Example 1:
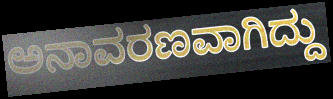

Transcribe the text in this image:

ಅನಾವರಣವಾಗಿದ್ದು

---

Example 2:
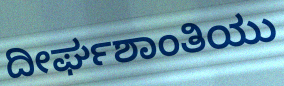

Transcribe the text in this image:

ದೀರ್ಘಶಾಂತಿಯು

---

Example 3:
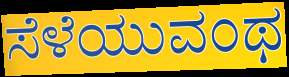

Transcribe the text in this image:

ಸೆಳೆಯುವಂಥ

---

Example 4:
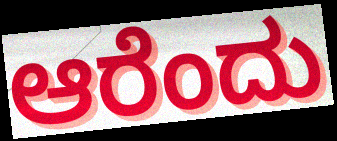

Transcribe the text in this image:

ಆರೆಂದು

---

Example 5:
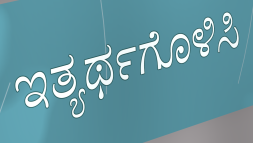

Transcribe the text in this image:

ಇತ್ಯರ್ಥಗೊಳಿಸಿ